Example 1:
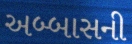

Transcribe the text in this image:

અબ્બાસની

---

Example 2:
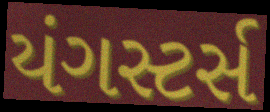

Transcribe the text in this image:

યંગસ્ટર્સ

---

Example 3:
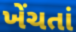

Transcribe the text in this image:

ખેંચતાં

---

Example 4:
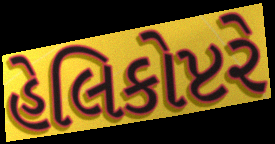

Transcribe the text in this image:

હેલિકોપ્ટરે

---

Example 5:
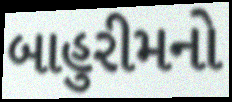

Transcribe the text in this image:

બાહુરીમનો